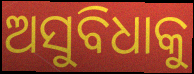
ଅସୁବିଧାକୁ